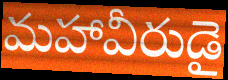
మహావీరుడై